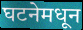
घटनेमधून